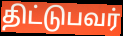
திட்டுபவர்